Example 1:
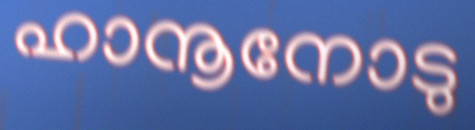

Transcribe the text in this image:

ഹാനൂനോടു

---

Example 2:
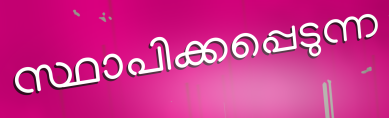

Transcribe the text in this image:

സ്ഥാപിക്കപ്പെടുന്ന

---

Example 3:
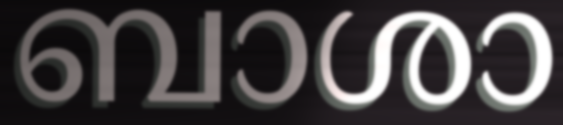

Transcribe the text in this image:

ബാശാ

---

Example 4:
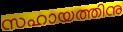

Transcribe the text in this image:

സഹായത്തിനു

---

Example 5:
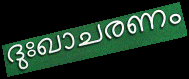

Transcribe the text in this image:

ദുഃഖാചരണം